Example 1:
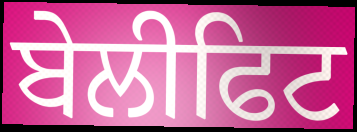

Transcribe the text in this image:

ਬੇਲੀਫਿਟ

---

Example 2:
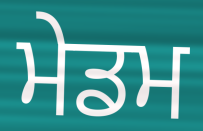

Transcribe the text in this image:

ਮੇਡਮ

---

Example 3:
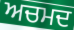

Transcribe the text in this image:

ਅਚਮਦ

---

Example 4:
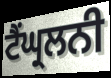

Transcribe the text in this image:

ਟੈਂਘ੍ਰਲਨੀ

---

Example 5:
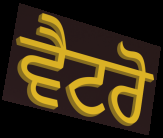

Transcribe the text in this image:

ਵੈਟਰੋ